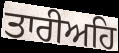
ਤਾਰੀਅਹਿ